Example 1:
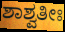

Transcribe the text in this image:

ಶಾಶ್ವತೀಃ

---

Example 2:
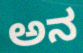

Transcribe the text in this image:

ಅನ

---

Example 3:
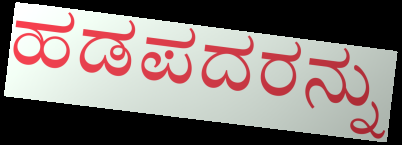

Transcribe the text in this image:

ಹಡಪದರನ್ನು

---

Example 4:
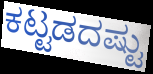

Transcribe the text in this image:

ಕಟ್ಟಡದಷ್ಟು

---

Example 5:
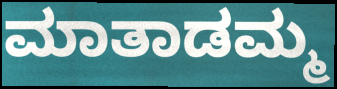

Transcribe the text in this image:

ಮಾತಾಡಮ್ಮ